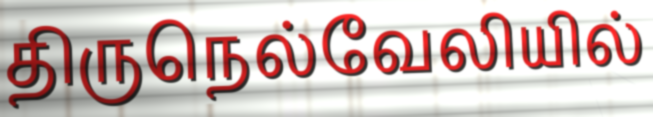
திருநெல்வேலியில்